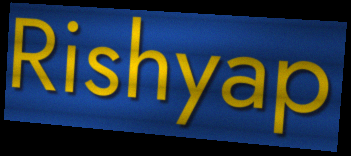
Rishyap